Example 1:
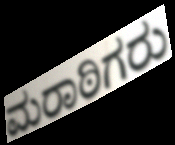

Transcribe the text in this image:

ಮರಾಠಿಗರು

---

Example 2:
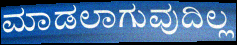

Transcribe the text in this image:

ಮಾಡಲಾಗುವುದಿಲ್ಲ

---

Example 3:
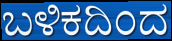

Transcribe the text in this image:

ಬಳಿಕದಿಂದ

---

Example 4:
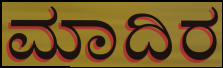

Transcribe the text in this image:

ಮಾದಿರ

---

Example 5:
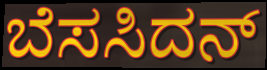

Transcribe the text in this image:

ಬೆಸಸಿದನ್